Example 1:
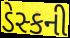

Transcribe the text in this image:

ડેસ્કની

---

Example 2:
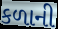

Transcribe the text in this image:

કળાની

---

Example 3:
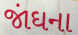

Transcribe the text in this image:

જાંઘના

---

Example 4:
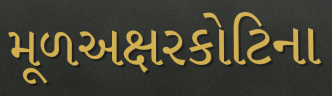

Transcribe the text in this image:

મૂળઅક્ષરકોટિના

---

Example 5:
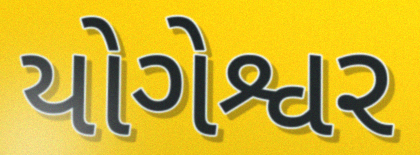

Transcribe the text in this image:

યોગેશ્વર